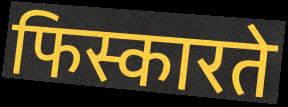
फिस्कारते